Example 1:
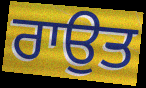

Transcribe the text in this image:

ਰਾਉਤ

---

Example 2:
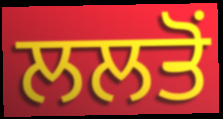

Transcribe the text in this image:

ਲਲਤੋਂ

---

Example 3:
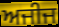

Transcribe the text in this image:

ਅਜੀਜ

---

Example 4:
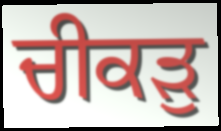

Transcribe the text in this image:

ਚੀਕੜੁ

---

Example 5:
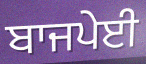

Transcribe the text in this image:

ਬਾਜਪੇਈ